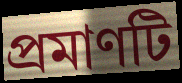
প্ৰমাণটি